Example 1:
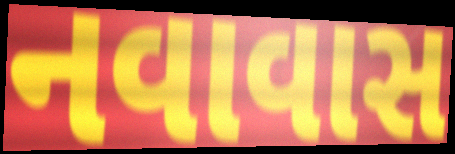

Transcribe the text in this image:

નવાવાસ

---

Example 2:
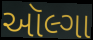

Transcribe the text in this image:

ઑલ્ગા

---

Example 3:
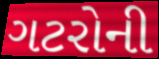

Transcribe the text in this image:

ગટરોની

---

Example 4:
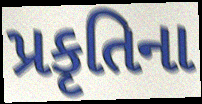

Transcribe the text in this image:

પ્રકૃતિના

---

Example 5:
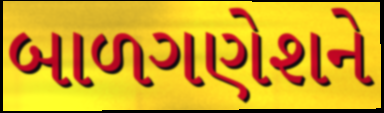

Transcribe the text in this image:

બાળગણેશને